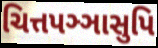
ચિત્તપઞ્ઞાસુપિ